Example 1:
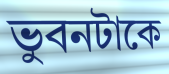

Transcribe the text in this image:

ভুবনটাকে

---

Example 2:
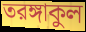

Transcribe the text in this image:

তরঙ্গাকুল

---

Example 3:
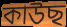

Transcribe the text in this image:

কাউছ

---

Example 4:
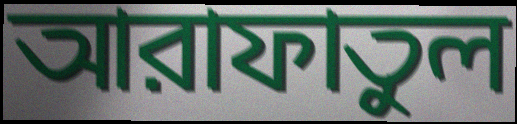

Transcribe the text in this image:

আরাফাতুল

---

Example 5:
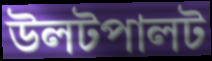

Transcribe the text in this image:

উলটপালট